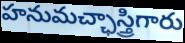
హనుమచ్ఛాస్త్రిగారు